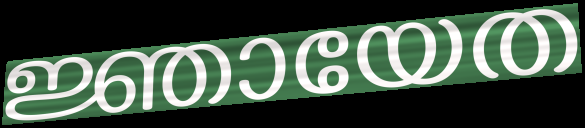
ജ്ഞായേത